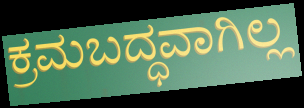
ಕ್ರಮಬದ್ಧವಾಗಿಲ್ಲ